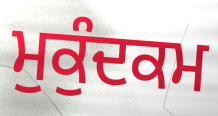
ਮੁਕੁੰਦਕਮ